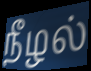
நீழல்